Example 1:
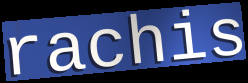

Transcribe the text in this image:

rachis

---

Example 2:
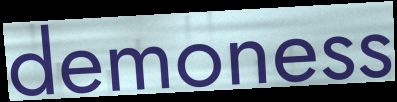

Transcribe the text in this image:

demoness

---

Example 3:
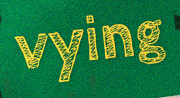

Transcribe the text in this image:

vying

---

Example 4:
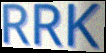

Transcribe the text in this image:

RRK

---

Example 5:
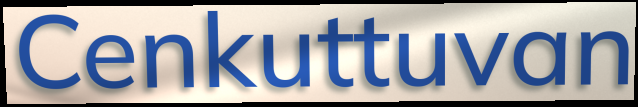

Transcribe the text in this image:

Cenkuttuvan